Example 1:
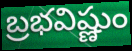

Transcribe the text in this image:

బ్రభవిష్ణుం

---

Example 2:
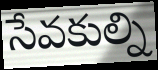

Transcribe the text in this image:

సేవకుల్ని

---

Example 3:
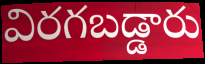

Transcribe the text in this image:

విరగబడ్డారు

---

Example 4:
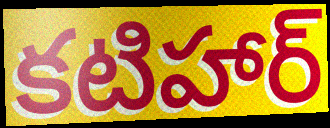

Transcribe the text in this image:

కటిహార్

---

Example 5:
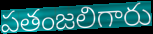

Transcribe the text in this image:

పతంజలిగారు